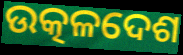
ଉତ୍କଳଦେଶ